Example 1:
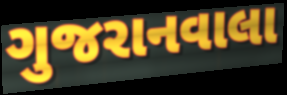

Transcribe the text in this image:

ગુજરાનવાલા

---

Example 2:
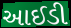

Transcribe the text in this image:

આઈડી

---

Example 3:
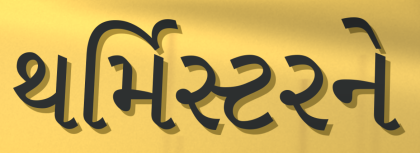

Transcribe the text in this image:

થર્મિસ્ટરને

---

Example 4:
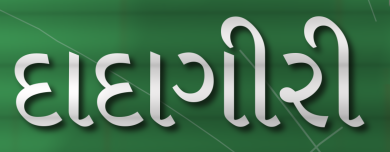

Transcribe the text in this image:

દાદાગીરી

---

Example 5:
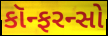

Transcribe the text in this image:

કૉન્ફરન્સો